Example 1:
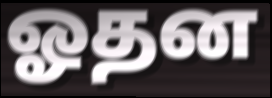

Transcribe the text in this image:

ஓதன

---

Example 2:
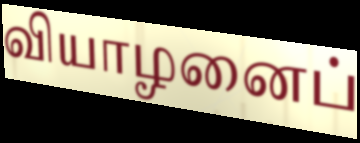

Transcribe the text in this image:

வியாழனைப்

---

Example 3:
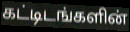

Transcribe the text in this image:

கட்டிடங்களின்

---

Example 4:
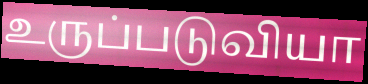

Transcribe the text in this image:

உருப்படுவியா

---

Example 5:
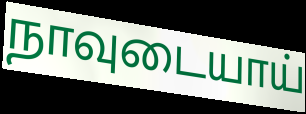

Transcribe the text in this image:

நாவுடையாய்